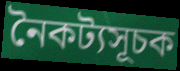
নৈকট্যসূচক